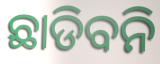
ଛାଡିବନି